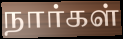
நார்கள்